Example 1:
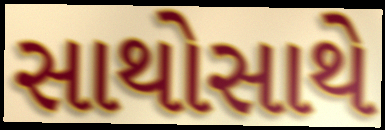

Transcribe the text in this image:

સાથોસાથે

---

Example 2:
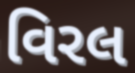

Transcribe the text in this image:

વિરલ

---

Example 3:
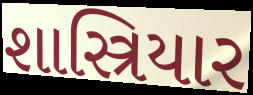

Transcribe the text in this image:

શાસ્ત્રિયાર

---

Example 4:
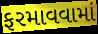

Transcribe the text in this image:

ફરમાવવામાં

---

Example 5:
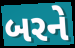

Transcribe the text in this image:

બરને